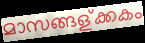
മാസങ്ങള്ക്കകം